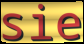
sie